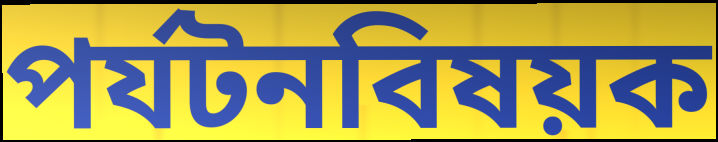
পর্যটনবিষয়ক